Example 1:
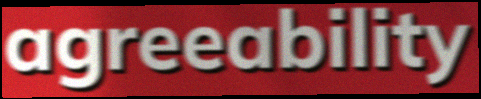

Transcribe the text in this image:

agreeability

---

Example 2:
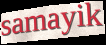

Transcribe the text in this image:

samayik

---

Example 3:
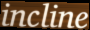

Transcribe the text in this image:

incline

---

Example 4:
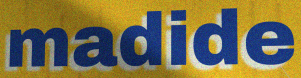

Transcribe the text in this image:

madide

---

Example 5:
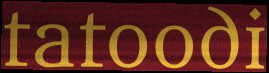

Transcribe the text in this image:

tatoodi